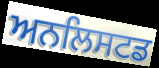
ਅਨਲਿਸਟਡ